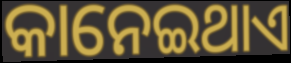
କାନେଇଥାଏ